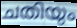
ചതിയും